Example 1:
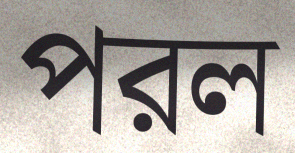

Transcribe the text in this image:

পরল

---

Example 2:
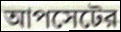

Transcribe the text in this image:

আপসেটের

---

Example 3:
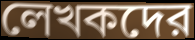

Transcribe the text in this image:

লেখকদের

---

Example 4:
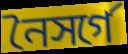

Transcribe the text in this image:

নৈসর্গে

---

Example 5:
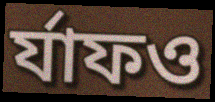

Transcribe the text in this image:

র্যাফও